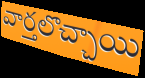
వార్తలొచ్చాయి